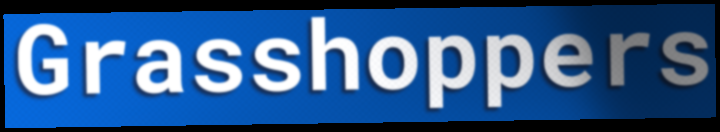
Grasshoppers